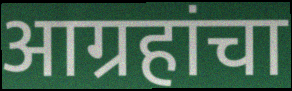
आग्रहांचा